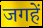
जगहें